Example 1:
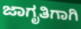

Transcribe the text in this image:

ಜಾಗೃತಿಗಾಗಿ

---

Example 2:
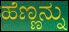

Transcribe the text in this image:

ಹೆಣ್ಣನ್ನು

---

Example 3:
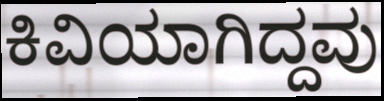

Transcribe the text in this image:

ಕಿವಿಯಾಗಿದ್ದವು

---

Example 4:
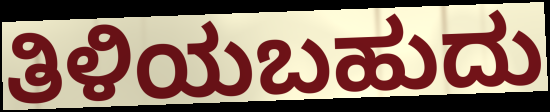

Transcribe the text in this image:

ತಿಳಿಯಬಹುದು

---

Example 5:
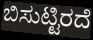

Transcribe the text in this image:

ಬಿಸುಟ್ಟಿರದೆ